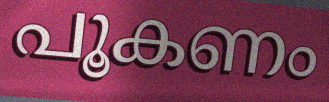
പൂകണം